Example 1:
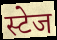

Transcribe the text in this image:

स्टेज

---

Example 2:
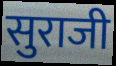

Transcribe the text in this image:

सुराजी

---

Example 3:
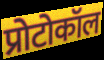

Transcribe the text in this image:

प्रोटोकॉल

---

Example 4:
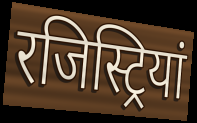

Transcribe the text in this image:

रजिस्ट्रियां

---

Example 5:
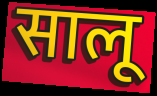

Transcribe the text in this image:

सालू